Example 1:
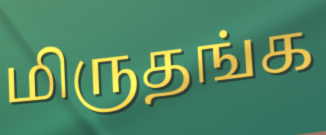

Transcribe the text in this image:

மிருதங்க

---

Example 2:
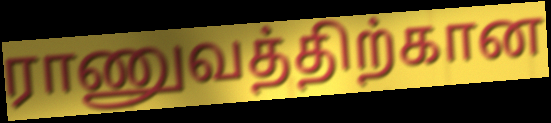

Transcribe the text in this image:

ராணுவத்திற்கான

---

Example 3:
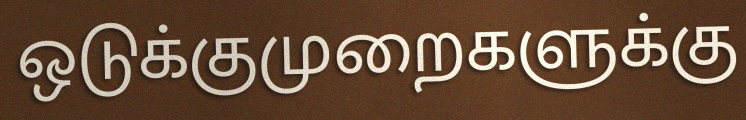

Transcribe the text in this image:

ஒடுக்குமுறைகளுக்கு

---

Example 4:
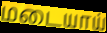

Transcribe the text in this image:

மடையாய்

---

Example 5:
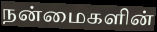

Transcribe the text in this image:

நன்மைகளின்